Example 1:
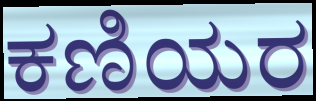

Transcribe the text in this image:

ಕಣಿಯರ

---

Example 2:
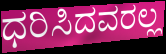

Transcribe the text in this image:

ಧರಿಸಿದವರಲ್ಲ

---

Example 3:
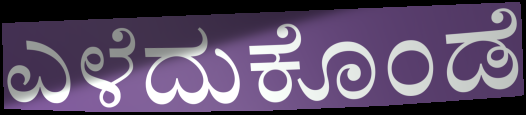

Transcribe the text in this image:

ಎಳೆದುಕೊಂಡೆ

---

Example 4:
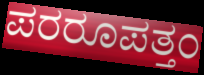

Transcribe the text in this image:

ಪರರೂಪತ್ತಂ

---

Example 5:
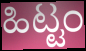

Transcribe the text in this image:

ಹಿಟ್ಟಂ